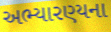
અભ્યારણ્યના